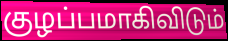
குழப்பமாகிவிடும்